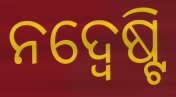
ନଦ୍ୱେଷ୍ଟି